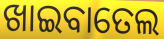
ଖାଇବାତେଲ